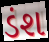
ડંશ